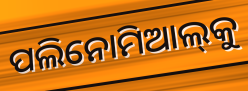
ପଲିନୋମିଆଲ୍‌କୁ